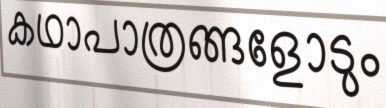
കഥാപാത്രങ്ങളോടും